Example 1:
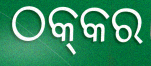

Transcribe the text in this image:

ଠକ୍‍କର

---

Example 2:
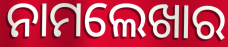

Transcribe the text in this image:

ନାମଲେଖାର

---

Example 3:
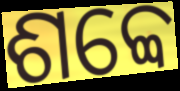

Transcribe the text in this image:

ଶବ୍ବେ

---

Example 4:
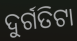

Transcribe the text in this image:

ଦୁର୍ଗତିଟା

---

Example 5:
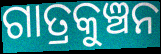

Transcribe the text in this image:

ଗାତ୍ରକୁଞ୍ଚନ